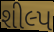
શીલ્પ